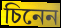
চিনেন